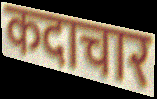
कदाचार